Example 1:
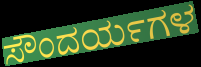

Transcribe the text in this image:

ಸೌಂದರ್ಯಗಳ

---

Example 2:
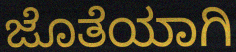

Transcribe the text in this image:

ಜೊತೆಯಾಗಿ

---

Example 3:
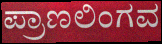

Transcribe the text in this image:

ಪ್ರಾಣಲಿಂಗವ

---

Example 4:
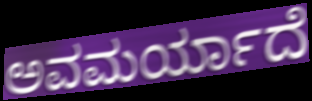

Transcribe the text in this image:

ಅವಮರ್ಯಾದೆ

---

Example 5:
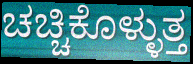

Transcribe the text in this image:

ಚಚ್ಚಿಕೊಳ್ಳುತ್ತ